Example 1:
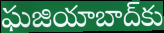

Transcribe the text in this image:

ఘజియాబాద్‌కు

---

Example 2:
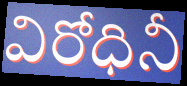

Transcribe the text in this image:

విరోధినీ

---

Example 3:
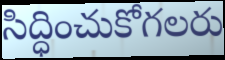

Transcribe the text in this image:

సిద్ధించుకోగలరు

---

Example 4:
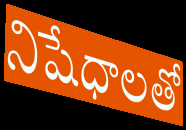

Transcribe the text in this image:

నిషేధాలతో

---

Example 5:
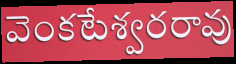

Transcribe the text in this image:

వెంకటేశ్వరరావు